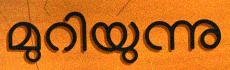
മുറിയുന്നു